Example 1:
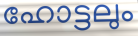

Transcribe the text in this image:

ഹോട്ടലും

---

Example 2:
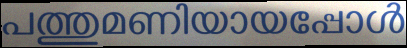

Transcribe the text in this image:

പത്തുമണിയായപ്പോൾ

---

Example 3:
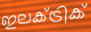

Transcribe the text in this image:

ഇലക്ട്രിക്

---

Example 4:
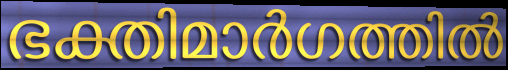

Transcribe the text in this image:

ഭക്തിമാർഗത്തിൽ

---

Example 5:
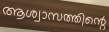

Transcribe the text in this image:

ആശ്വാസത്തിന്റെ